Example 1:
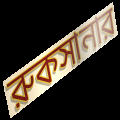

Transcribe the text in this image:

রুকসানার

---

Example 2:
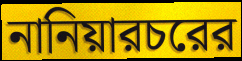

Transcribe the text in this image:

নানিয়ারচরের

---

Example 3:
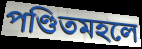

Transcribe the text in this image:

পণ্ডিতমহলে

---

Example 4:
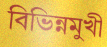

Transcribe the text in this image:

বিভিন্নমুখী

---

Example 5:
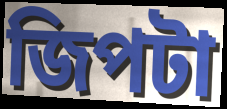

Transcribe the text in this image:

জিপটা